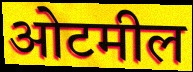
ओटमील